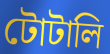
টোটালি